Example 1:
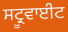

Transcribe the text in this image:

ਸਟ੍ਰੂਵਾਈਟ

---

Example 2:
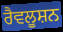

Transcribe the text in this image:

ਰੈਵਲੂਸ਼ਨ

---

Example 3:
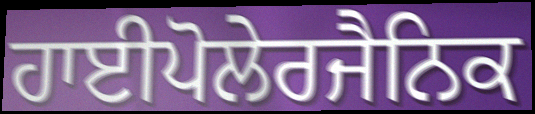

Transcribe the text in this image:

ਹਾਈਪੋਲੇਰਜੈਨਿਕ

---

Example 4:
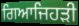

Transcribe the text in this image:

ਗਿਆਜਿਹੜੀ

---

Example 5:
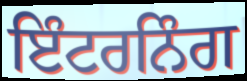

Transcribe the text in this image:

ਇੰਟਰਨਿੰਗ